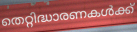
തെറ്റിദ്ധാരണകൾക്ക്